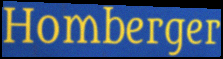
Homberger